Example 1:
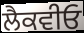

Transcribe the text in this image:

ਲੈਕਵੀਓ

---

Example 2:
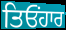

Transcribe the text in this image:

ਤਿਓਂਹਾਰ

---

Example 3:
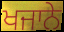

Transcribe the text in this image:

ਖਜਾਨੇ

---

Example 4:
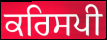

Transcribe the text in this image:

ਕਰਿਸਪੀ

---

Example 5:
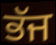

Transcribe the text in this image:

ਭੱਜ